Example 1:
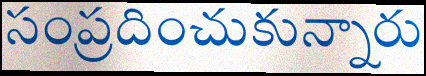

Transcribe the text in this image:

సంప్రదించుకున్నారు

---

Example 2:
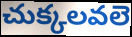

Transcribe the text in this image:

చుక్కలవలె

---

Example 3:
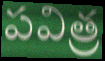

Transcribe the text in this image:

పవిత్ర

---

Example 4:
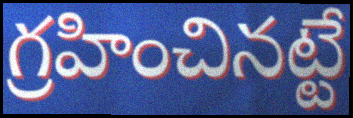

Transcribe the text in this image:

గ్రహించినట్టే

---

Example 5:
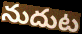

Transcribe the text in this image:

నుదుట